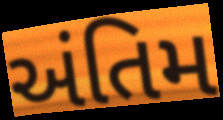
અંતિમ